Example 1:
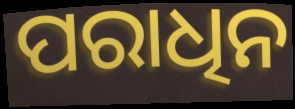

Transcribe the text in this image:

ପରାଧିନ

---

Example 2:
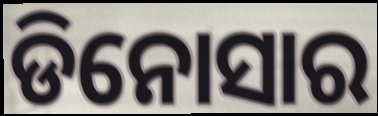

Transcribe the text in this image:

ଡିନୋସାର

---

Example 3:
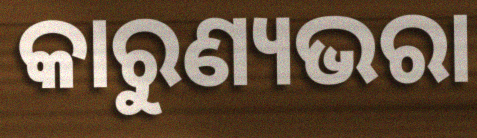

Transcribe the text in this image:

କାରୁଣ୍ୟଭରା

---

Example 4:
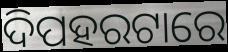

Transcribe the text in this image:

ଦିପହରଟାରେ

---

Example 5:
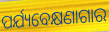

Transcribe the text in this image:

ପର୍ଯ୍ୟବେକ୍ଷଣାଗାର